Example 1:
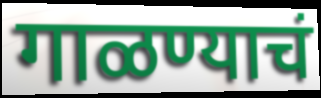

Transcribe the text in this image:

गाळण्याचं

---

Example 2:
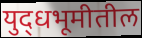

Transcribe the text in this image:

युद्धभूमीतील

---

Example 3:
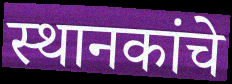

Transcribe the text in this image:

स्थानकांचे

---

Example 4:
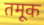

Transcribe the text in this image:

तमूक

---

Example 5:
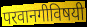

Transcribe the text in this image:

परवानगीविषयी